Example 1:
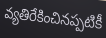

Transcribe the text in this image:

వ్యతిరేకించినప్పటికీ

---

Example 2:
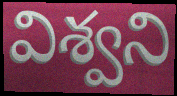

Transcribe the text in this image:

విశ్వని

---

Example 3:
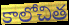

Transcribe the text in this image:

కాలోచిత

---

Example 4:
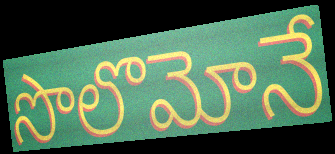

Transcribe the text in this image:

సొలొమోనే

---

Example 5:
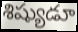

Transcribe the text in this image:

శిష్యుడూ